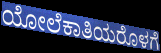
ಯೋಲೆಕಾತಿಯರೊಳಗೆ